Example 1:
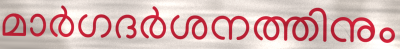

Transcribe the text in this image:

മാർഗദർശനത്തിനും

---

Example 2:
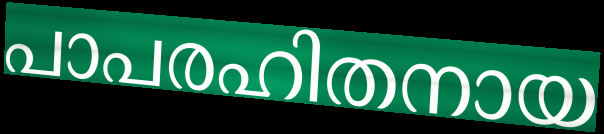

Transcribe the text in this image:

പാപരഹിതനായ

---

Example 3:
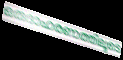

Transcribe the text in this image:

ഒരുദാഹരണത്തിലൂടെ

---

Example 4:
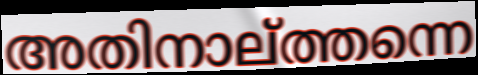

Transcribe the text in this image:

അതിനാല്ത്തന്നെ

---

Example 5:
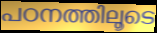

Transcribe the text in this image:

പഠനത്തിലൂടെ